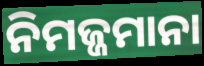
ନିମଜ୍ଜମାନା